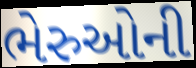
ભેરુઓની